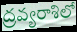
ద్రవ్యరాశిలో